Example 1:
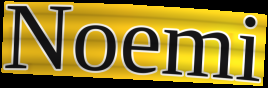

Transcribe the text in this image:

Noemi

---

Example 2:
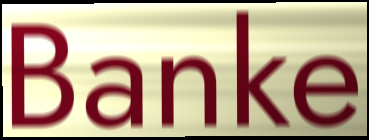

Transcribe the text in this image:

Banke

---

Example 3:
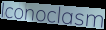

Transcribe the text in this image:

Iconoclasm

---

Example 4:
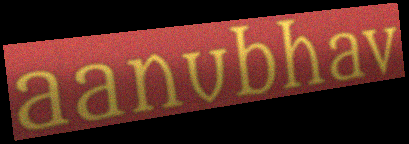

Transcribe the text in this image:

aanubhav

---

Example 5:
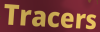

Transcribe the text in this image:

Tracers